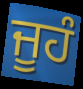
ਜੂਹੰ